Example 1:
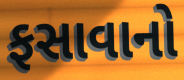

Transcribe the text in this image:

ફસાવાનો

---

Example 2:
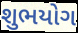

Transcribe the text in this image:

શુભયોગ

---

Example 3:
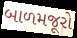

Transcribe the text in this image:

બાળમજૂરો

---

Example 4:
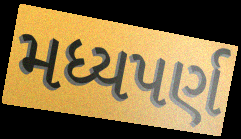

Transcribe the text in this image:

મધ્યપર્ણ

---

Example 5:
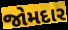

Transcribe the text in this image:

જોમદાર